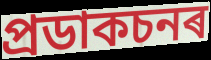
প্ৰডাকচনৰ